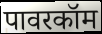
पावरकॉम